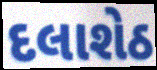
દલાશેઠ